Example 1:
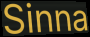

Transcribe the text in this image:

Sinna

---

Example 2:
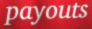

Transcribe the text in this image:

payouts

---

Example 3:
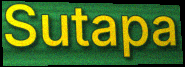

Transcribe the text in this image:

Sutapa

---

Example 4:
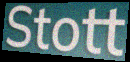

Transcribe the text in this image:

Stott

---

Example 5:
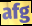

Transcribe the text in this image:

afg